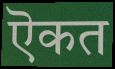
ऎकत